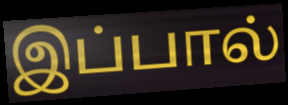
இப்பால்